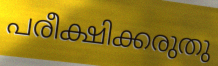
പരീക്ഷിക്കരുതു